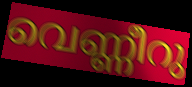
വെണ്ണീറു